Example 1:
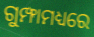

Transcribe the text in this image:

ଗୁମ୍ଫାମଧ୍ୟରେ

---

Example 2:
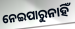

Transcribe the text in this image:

ନେଇପାରୁନାହିଁ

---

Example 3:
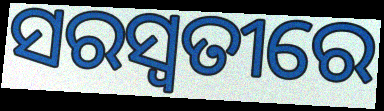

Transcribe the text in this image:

ସରସ୍ୱତୀରେ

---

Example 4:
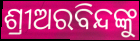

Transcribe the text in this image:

ଶ୍ରୀଅରବିନ୍ଦଙ୍କୁ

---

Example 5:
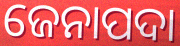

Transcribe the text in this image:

ଜେନାପଦା